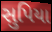
સુપિયા